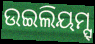
ଉଇଲିୟମ୍ସ୍